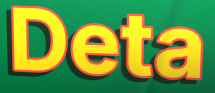
Deta